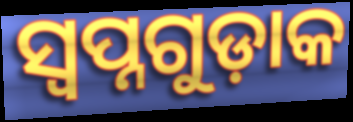
ସ୍ୱପ୍ନଗୁଡ଼ାକ